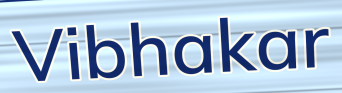
Vibhakar